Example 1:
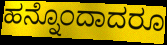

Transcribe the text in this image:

ಹನ್ನೊಂದಾದರೂ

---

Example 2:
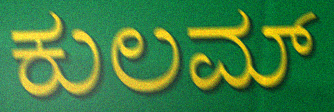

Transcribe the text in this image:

ಕುಲಮ್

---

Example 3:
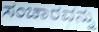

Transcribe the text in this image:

ಸಂಚಾರವನ್ನು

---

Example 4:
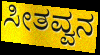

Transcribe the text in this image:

ಸೀತವ್ವನ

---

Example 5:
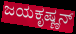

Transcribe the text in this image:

ಜಯಕೃಷ್ಣನ್